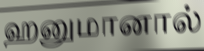
ஹனுமானால்